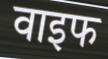
वाइफ